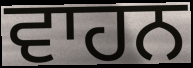
ਵਾਹਨ